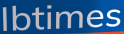
Ibtimes